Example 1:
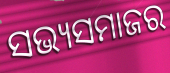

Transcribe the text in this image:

ସଭ୍ୟସମାଜର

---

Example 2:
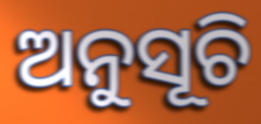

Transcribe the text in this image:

ଅନୁସୂଚି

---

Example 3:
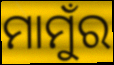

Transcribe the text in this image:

ମାମୁଁର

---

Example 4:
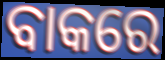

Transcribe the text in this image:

ବାକରେ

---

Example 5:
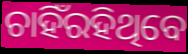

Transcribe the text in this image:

ଚାହିଁରହିଥିବେ